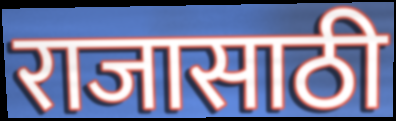
राजासाठी